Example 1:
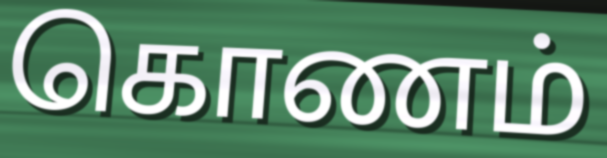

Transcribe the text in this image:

கொணம்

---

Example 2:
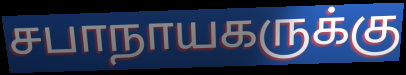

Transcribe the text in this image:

சபாநாயகருக்கு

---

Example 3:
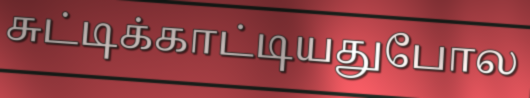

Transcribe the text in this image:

சுட்டிக்காட்டியதுபோல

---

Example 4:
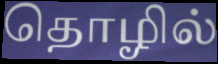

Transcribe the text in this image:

தொழில்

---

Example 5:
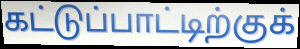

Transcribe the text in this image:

கட்டுப்பாட்டிற்குக்